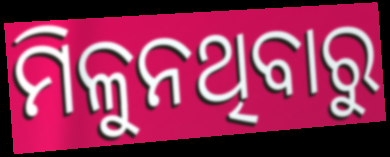
ମିଳୁନଥିବାରୁ